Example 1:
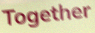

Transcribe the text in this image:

Together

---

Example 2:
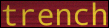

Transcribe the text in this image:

trench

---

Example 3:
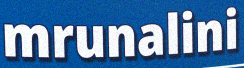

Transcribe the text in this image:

mrunalini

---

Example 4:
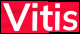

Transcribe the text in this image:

Vitis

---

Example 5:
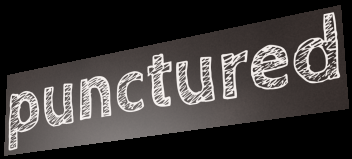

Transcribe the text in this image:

punctured